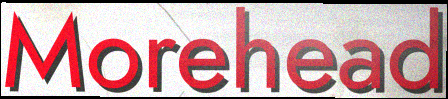
Morehead